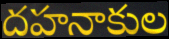
దహనాకుల